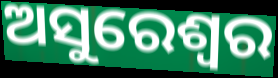
ଅସୁରେଶ୍ଵର